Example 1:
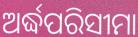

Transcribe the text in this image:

ଅର୍ଦ୍ଧପରିସୀମା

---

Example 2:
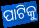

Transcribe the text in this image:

ପାଟିକୁ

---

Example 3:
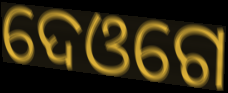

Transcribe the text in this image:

ଦେଓଗେ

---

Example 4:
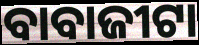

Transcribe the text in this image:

ବାବାଜୀଟା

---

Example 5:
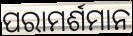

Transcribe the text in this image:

ପରାମର୍ଶମାନ